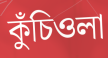
কুঁচিওলা